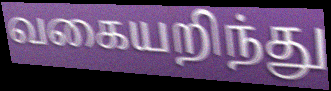
வகையறிந்து